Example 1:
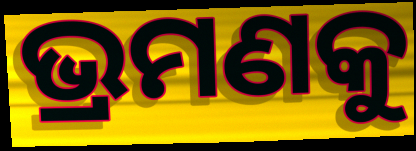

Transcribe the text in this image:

ଭ୍ରମଣକୁ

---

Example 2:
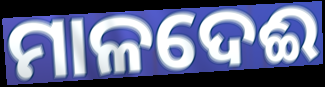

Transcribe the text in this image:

ମାଳଦେଈ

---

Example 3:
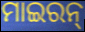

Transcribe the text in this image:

ମାଇରନ୍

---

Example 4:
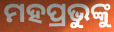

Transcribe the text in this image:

ମହପ୍ରଭୁଙ୍କୁ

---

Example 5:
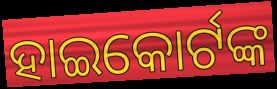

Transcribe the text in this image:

ହାଇକୋର୍ଟଙ୍କ